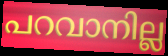
പറവാനില്ല